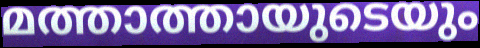
മത്താത്തായുടെയും